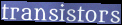
transistors